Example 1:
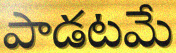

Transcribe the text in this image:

పాడటమే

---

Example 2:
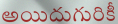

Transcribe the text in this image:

అయిదుగురికీ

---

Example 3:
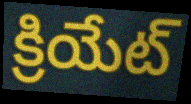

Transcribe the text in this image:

క్రియేట్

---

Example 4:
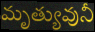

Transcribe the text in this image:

మృత్యువునీ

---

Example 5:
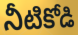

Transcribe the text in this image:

నీటికోడి